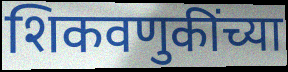
शिकवणुकींच्या